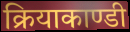
क्रियाकाण्डी